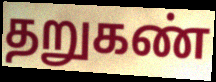
தறுகண்